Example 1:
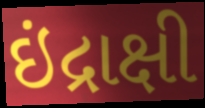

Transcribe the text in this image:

ઇંદ્રાક્ષી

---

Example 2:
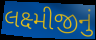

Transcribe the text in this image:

લક્ષ્મીજીનું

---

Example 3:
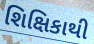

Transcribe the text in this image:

શિક્ષિકાથી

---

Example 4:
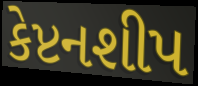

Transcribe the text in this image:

કેપ્ટનશીપ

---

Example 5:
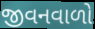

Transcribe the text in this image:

જીવનવાળો